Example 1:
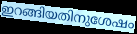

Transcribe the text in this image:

ഇറങ്ങിയതിനുശേഷം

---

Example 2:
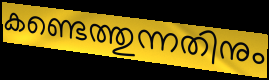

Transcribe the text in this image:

കണ്ടെത്തുന്നതിനും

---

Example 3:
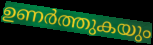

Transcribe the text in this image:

ഉണർത്തുകയും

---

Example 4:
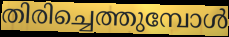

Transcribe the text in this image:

തിരിച്ചെത്തുമ്പോൾ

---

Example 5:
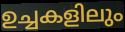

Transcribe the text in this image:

ഉച്ചകളിലും